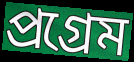
প্ৰগ্ৰেম